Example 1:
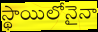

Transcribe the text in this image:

స్థాయిలోనైనా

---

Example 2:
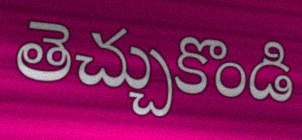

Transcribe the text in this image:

తెచ్చుకొండి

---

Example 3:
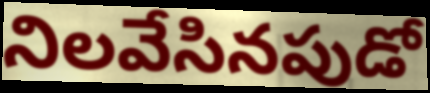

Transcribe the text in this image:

నిలవేసినపుడో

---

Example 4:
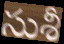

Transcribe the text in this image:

సుశీ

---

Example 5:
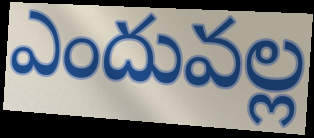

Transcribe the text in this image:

ఎందువల్ల